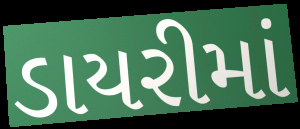
ડાયરીમાં